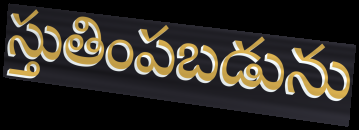
స్తుతింపబడును